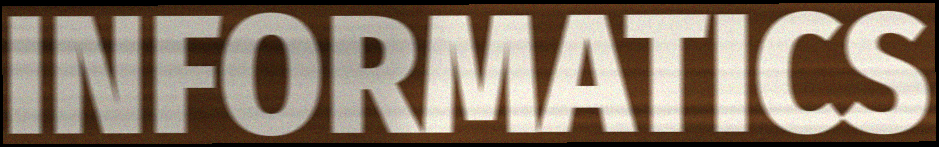
INFORMATICS